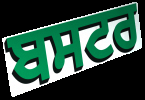
ਬਸਟਰ